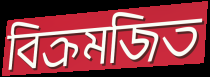
বিক্রমজিত